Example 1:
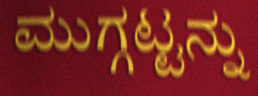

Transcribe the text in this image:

ಮುಗ್ಗಟ್ಟನ್ನು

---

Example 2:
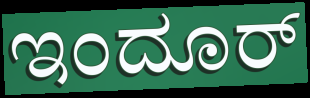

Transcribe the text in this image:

ಇಂದೂರ್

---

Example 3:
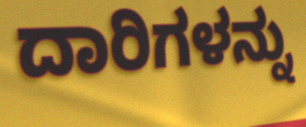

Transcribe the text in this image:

ದಾರಿಗಳನ್ನು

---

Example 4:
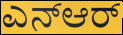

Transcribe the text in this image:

ಎನ್ಆರ್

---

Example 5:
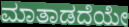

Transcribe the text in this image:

ಮಾತಾಡದೆಯೇ